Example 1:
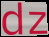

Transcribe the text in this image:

dz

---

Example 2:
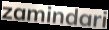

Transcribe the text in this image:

zamindari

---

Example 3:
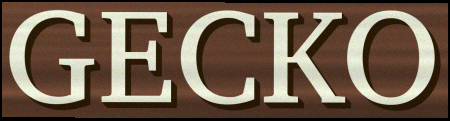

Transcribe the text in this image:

GECKO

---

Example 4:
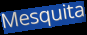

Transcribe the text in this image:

Mesquita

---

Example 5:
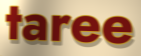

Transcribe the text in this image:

taree